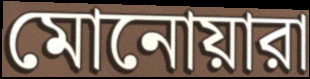
মোনোয়ারা